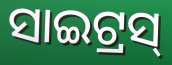
ସାଇଟ୍ରସ୍